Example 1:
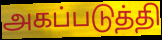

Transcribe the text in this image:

அகப்படுத்தி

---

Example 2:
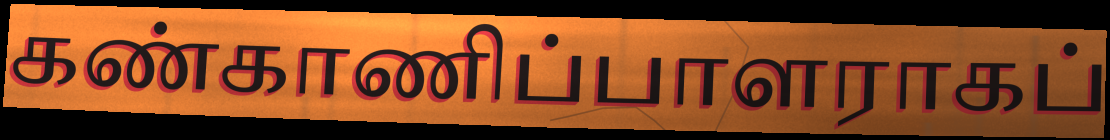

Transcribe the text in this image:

கண்காணிப்பாளராகப்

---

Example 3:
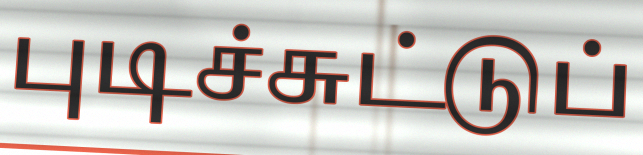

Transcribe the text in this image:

புடிச்சுட்டுப்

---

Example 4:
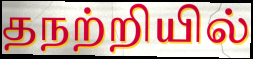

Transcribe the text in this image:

தநற்றியில்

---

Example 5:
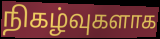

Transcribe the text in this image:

நிகழ்வுகளாக